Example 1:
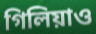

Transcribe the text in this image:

গিলিয়াও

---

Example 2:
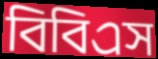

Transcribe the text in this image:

বিবিএস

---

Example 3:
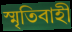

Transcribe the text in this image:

স্মৃতিবাহী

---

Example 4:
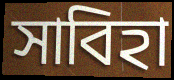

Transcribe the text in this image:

সাবিহা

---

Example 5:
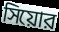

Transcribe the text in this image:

সিয়োর